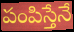
పంపిస్తేనే